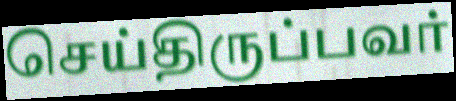
செய்திருப்பவர்